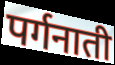
पर्गनाती